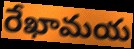
రేఖామయ